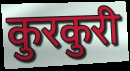
कुरकुरी